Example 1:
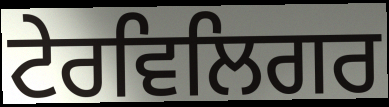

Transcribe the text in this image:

ਟੇਰਵਿਲਿਗਰ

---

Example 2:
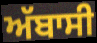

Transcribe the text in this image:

ਅੱਬਾਸੀ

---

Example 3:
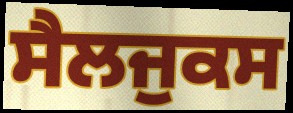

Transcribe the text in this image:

ਸੈਲਜੁਕਸ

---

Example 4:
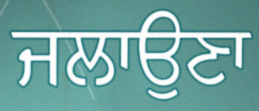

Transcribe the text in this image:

ਜਲਾਉਣਾ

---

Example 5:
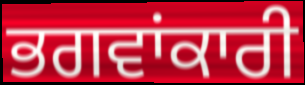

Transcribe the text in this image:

ਭਗਵਾਂਕਾਰੀ